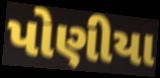
પોણીયા